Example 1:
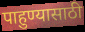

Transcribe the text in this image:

पाहुण्यासाठी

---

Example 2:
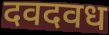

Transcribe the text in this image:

दवदवध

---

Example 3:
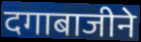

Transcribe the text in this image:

दगाबाजीने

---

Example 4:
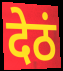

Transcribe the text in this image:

देठं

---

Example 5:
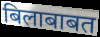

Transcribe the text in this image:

बिलाबाबत